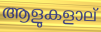
ആളുകളാല്